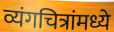
व्यंगचित्रांमध्ये